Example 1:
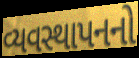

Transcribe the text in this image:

વ્યવસ્થાપનનો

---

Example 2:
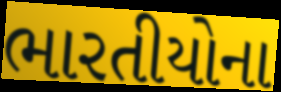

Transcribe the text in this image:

ભારતીયોના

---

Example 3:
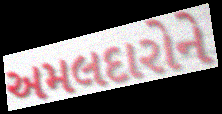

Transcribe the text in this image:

અમલદારોને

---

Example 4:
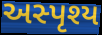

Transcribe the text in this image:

અસ્પૃશ્ય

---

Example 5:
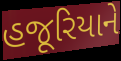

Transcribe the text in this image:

હજૂરિયાને